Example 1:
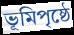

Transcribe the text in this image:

ভূমিপৃষ্ঠে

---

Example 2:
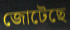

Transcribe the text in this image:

জোটেছে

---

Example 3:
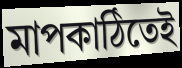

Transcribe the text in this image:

মাপকাঠিতেই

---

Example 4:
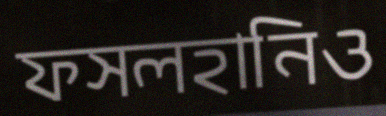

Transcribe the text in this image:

ফসলহানিও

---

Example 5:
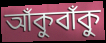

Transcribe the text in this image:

আঁকুবাঁকু